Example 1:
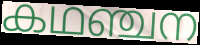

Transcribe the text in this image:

കഥഞ്ചന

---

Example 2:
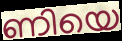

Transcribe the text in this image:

ണിയെ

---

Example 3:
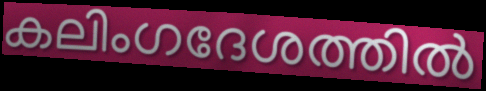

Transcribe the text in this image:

കലിംഗദേശത്തിൽ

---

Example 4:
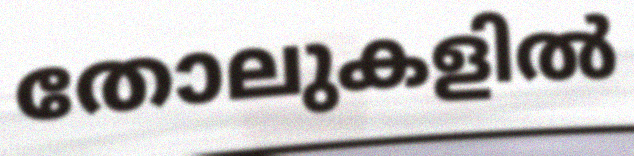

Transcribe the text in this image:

തോലുകളിൽ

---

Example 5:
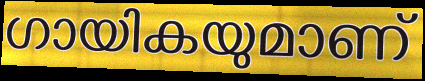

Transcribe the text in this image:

ഗായികയുമാണ്